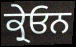
ਕ੍ਰੇਓਨ